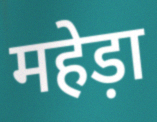
महेड़ा